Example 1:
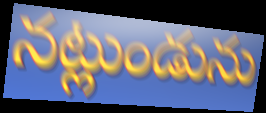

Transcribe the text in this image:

నట్లుండును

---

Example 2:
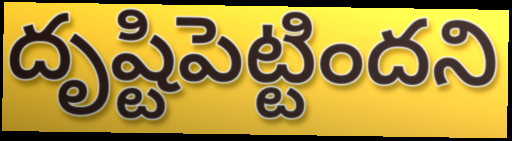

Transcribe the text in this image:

దృష్టిపెట్టిందని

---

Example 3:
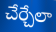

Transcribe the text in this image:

చేర్చేలా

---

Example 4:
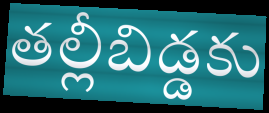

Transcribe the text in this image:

తల్లీబిడ్డకు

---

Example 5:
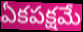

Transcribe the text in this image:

ఏకపక్షమే